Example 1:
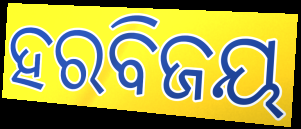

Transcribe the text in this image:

ହରବିଜୟ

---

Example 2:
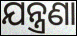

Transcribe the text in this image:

ଯନ୍ତ୍ରଣା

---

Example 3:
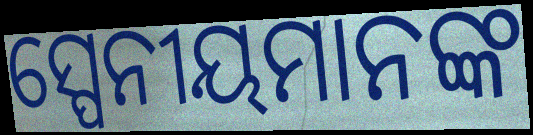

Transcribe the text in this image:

ସ୍ପେନୀୟମାନଙ୍କ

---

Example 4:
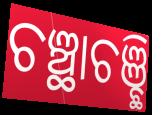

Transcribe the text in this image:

ଚଞ୍ଛାଚଞ୍ଛି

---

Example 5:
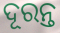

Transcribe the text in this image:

ଦୂରନ୍ତ